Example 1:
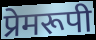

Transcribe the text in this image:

प्रेमरूपी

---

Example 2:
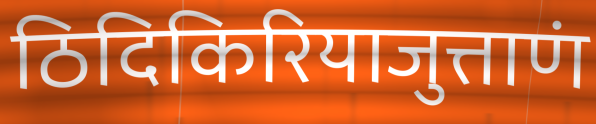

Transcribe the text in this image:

ठिदिकिरियाजुत्ताणं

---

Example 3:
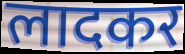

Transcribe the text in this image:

लादकर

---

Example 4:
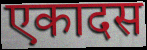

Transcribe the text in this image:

एकादस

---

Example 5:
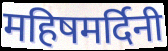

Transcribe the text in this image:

महिषमर्दिनी